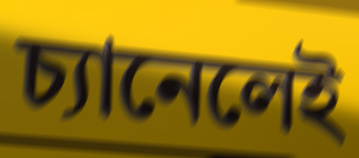
চ্যানেলেই